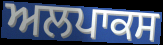
ਅਲਪਾਕਸ